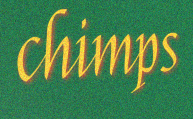
chimps